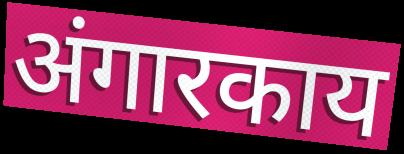
अंगारकाय